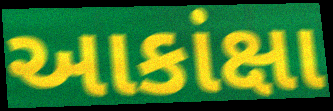
આકાંક્ષા